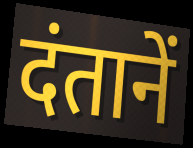
दंतानें